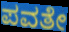
ಪವತೇ